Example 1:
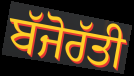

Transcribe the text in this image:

ਬੱਜੋਰੱਤੀ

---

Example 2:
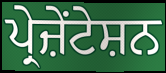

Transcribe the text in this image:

ਪ੍ਰੇਜ਼ੇਂਟੇਸ਼ਨ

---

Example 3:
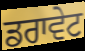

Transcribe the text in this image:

ਡਰਾਵੇਟ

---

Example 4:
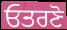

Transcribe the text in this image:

ਓਤਰਣੋ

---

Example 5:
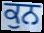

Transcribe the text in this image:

ਕੁਨ